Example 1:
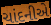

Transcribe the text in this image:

ચાંદનીએ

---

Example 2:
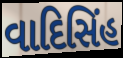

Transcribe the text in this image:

વાદિસિંહ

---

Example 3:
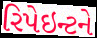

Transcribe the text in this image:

રિપેઇન્ટને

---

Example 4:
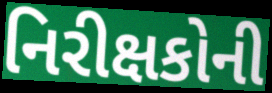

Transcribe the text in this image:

નિરીક્ષકોની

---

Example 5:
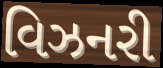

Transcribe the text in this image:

વિઝનરી